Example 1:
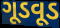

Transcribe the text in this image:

ગૂડવૂડ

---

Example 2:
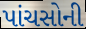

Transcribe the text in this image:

પાંચસોની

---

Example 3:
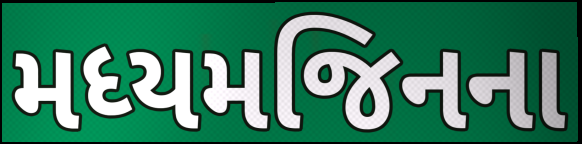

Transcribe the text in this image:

મધ્યમજિનના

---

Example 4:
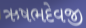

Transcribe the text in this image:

ઋષભદેવજી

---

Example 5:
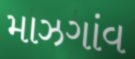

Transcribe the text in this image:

માઝગાંવ